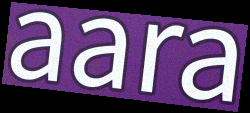
aara